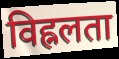
विह्नलता